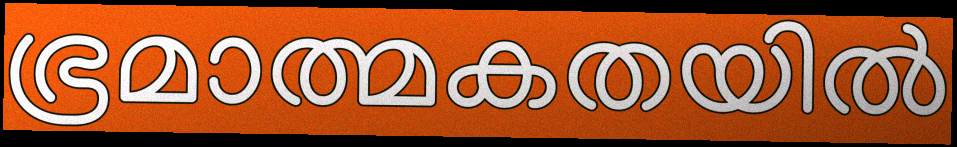
ഭ്രമാത്മകതയിൽ